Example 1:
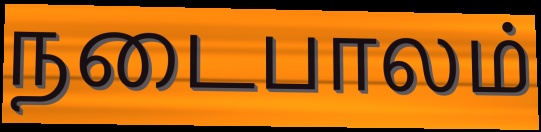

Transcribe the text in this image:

நடைபாலம்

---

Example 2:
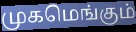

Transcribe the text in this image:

முகமெங்கும்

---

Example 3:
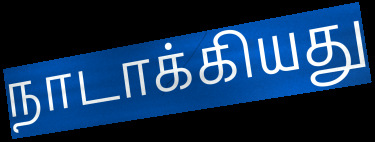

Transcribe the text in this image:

நாடாக்கியது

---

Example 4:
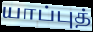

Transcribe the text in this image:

யாப்புத்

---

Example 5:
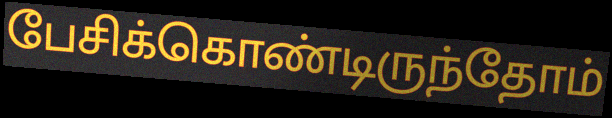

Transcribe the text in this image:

பேசிக்கொண்டிருந்தோம்